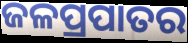
ଜଳପ୍ରପାତର